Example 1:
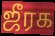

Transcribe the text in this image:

ஜீரக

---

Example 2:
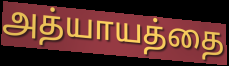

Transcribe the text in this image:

அத்யாயத்தை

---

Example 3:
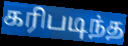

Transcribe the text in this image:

கரிபடிந்த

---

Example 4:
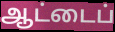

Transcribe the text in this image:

ஆட்டைப்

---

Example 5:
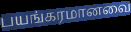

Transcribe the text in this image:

பயங்கரமானவை